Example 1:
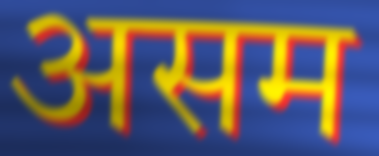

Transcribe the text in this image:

असम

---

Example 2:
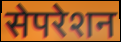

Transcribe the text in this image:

सेपरेशन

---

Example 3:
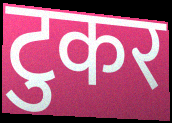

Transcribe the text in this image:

टुकर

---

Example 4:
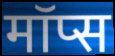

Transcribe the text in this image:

मॉप्स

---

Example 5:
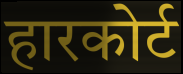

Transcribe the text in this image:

हारकोर्ट